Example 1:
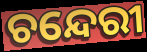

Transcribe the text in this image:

ଚନ୍ଦେରୀ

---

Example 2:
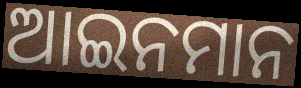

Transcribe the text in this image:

ଆଇନମାନ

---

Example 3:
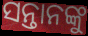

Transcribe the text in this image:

ସନ୍ତାନଙ୍କୁ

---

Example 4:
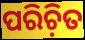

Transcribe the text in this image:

ପରିଚ଼ିତ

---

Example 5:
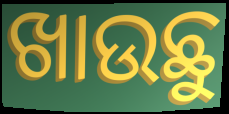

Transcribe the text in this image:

ଖାଉଛୁ